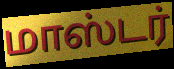
மாஸ்டர்